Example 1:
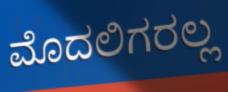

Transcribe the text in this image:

ಮೊದಲಿಗರಲ್ಲ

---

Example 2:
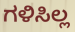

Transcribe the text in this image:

ಗಳಿಸಿಲ್ಲ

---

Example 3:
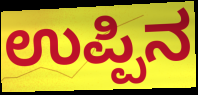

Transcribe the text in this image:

ಉಪ್ಪಿನ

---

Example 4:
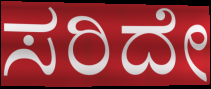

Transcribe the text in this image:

ಸರಿದೇ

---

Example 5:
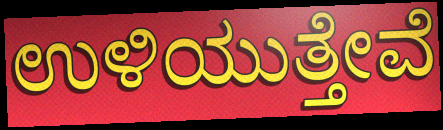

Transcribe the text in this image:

ಉಳಿಯುತ್ತೇವೆ